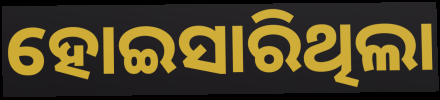
ହୋଇସାରିଥିଲା